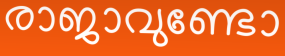
രാജാവുണ്ടോ